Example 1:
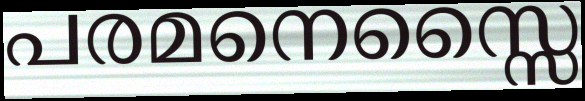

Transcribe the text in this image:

പരമനെസ്സൈ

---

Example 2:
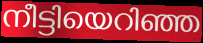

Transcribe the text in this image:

നീട്ടിയെറിഞ്ഞ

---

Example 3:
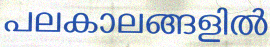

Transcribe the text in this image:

പലകാലങ്ങളിൽ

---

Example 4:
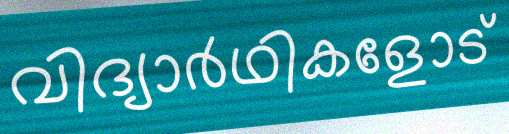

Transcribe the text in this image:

വിദ്യാർഥികളോട്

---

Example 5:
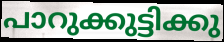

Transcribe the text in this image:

പാറുക്കുട്ടിക്കു